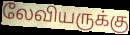
லேவியருக்கு